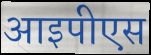
आइपीएस